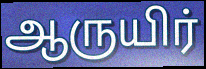
ஆருயிர்